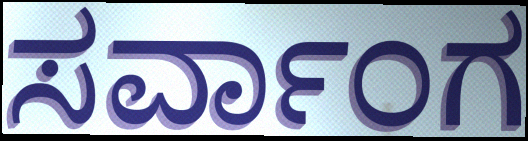
ಸರ್ವಾಂಗ